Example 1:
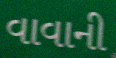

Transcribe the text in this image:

વાવાની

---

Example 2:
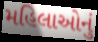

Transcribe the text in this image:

મહિલાઓનું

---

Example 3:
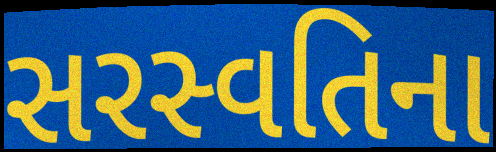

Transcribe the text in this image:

સરસ્વતિના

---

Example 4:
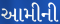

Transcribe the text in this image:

આમીની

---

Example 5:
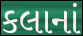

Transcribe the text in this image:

કલાનાં